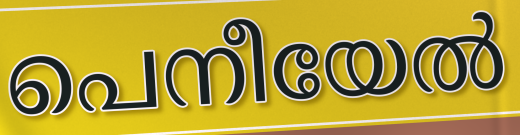
പെനീയേൽ